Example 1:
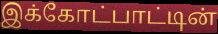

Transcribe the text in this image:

இக்கோட்பாட்டின்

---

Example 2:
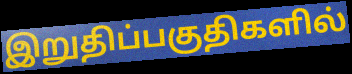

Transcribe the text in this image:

இறுதிப்பகுதிகளில்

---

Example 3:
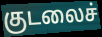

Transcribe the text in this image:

குடலைச்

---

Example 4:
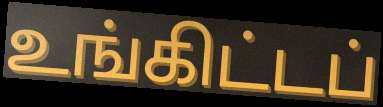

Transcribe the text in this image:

உங்கிட்டப்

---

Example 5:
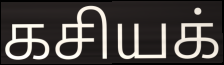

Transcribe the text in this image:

கசியக்